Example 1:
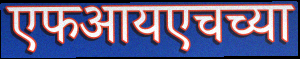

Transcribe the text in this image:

एफआयएचच्या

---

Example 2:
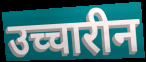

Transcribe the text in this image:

उच्चारीन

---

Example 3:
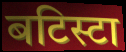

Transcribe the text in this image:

बटिस्टा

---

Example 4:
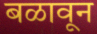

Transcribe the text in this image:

बळावून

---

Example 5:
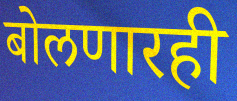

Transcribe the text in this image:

बोलणारही